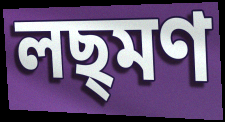
লছ্মণ